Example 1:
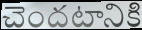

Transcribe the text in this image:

చెందటానికి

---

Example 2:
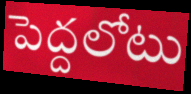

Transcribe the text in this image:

పెద్దలోటు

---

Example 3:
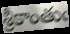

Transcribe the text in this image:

శ్రీకాంతుఁ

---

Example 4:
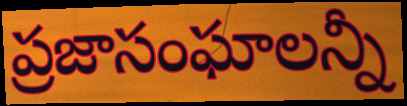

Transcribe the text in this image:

ప్రజాసంఘాలన్నీ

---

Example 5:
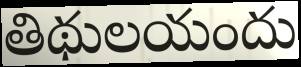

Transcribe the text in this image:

తిథులయందు